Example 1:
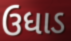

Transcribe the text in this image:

ઉધાડ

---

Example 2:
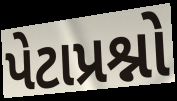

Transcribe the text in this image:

પેટાપ્રશ્નો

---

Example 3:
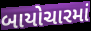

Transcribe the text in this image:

બાયોચારમાં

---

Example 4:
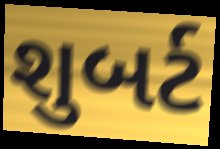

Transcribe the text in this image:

શુબર્ટ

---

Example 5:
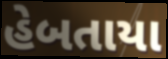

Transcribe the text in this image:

હેબતાયા